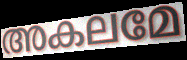
അകലമേ